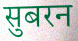
सुबरन